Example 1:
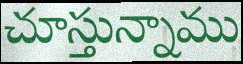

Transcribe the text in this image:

చూస్తున్నాము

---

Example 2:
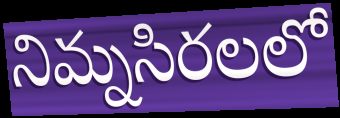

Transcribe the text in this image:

నిమ్నసిరలలో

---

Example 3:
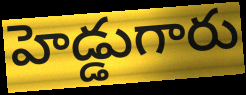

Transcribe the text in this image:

హెడ్డుగారు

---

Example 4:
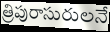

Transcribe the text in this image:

త్రిపురాసురులనే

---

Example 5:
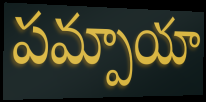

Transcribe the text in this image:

పమ్పాయా